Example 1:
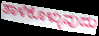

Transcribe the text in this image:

ತಾಳಿಕೊಳ್ಳುವುದು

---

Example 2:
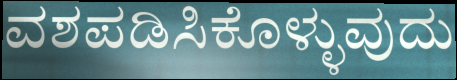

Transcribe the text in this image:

ವಶಪಡಿಸಿಕೊಳ್ಳುವುದು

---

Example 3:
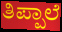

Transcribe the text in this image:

ತಿಪ್ಪಾಲೆ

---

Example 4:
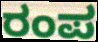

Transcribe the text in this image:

ರಂಪ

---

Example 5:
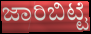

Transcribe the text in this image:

ಜಾರಿಬಿಟ್ಟೆ